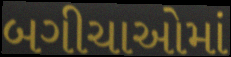
બગીચાઓમાં